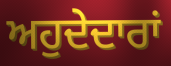
ਅਹੁਦੇਦਾਰਾਂ